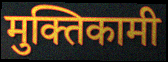
मुक्तिकामी